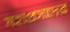
মহাপ্রসাদের